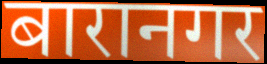
बारानगर